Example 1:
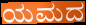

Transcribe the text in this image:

ಯಮದ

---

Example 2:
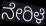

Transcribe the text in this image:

ನೇರಿಳೆ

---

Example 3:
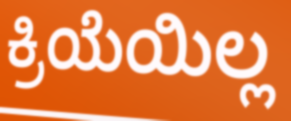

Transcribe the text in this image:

ಕ್ರಿಯೆಯಿಲ್ಲ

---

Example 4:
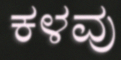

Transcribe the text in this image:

ಕಳವು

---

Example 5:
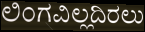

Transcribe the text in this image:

ಲಿಂಗವಿಲ್ಲದಿರಲು